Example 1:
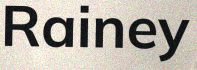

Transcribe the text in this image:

Rainey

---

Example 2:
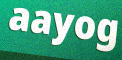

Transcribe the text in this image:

aayog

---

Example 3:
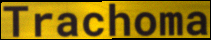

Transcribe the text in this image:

Trachoma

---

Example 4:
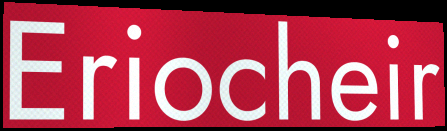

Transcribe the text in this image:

Eriocheir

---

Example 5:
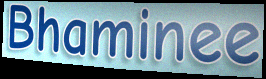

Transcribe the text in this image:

Bhaminee